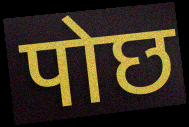
पोछ